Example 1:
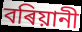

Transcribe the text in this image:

বৰিয়ানী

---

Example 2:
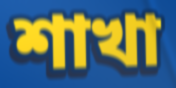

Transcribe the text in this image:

শাখা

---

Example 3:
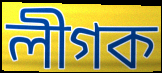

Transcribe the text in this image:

লীগক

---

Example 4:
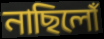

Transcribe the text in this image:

নাছিলোঁ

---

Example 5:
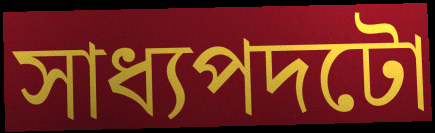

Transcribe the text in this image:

সাধ্যপদটো